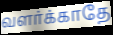
வளர்க்காதே